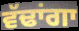
ਵੱਢਾਂਗਾ